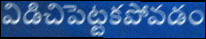
విడిచిపెట్టకపోవడం